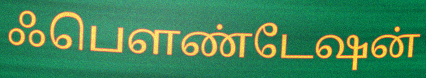
ஃபௌண்டேஷன்